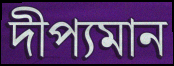
দীপ্যমান